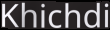
Khichdi